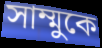
সাম্মুকে